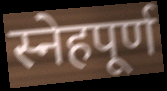
स्नेहपूर्ण